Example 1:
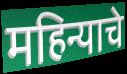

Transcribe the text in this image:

महिन्याचे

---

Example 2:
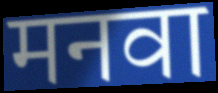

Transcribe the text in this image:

मनवा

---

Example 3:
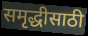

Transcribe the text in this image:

समृद्धीसाठी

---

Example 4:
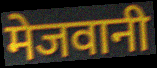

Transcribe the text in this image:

मेजवानी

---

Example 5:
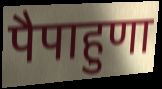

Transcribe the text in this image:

पैपाहुणा